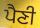
ਪੈਣੀ